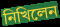
নিখিলেন